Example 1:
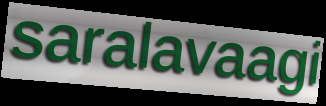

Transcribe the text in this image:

saralavaagi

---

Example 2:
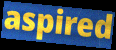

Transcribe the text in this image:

aspired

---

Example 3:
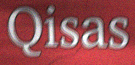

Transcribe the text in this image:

Qisas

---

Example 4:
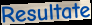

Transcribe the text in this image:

Resultate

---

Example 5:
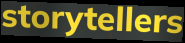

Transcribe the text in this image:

storytellers